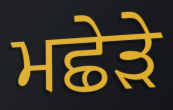
ਮਛੇੜੇ